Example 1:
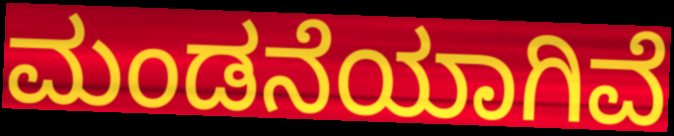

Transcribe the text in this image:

ಮಂಡನೆಯಾಗಿವೆ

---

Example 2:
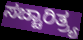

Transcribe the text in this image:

ಸಚ್ಚಾರಿತ್ರ್ಯ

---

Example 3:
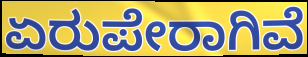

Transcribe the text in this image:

ಏರುಪೇರಾಗಿವೆ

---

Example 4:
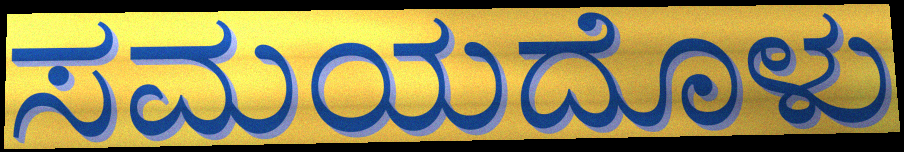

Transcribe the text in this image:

ಸಮಯದೊಳು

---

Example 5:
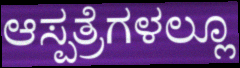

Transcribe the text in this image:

ಆಸ್ಪತ್ರೆಗಳಲ್ಲೂ